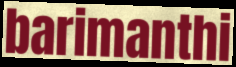
barimanthi